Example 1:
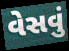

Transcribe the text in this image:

વેસવું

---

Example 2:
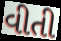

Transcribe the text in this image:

વીતી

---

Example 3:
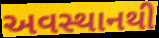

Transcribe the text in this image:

અવસ્થાનથી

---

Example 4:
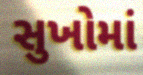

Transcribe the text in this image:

સુખોમાં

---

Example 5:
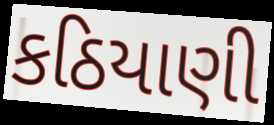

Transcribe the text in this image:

કઠિયાણી